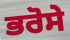
ਭਰੋਸੇ